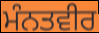
ਮੰਨਤਵੀਰ